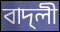
বাদ্‌লী